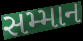
સમ્માન